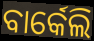
ବାର୍କେଲି